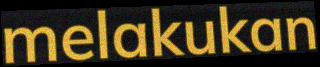
melakukan